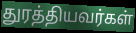
துரத்தியவர்கள்